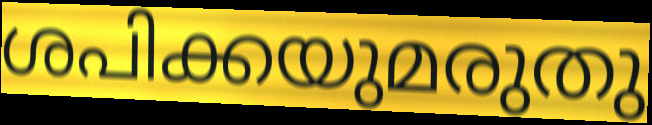
ശപിക്കയുമരുതു